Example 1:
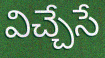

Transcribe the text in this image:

విచ్చేసే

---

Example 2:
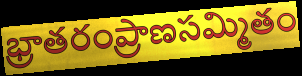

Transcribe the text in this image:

భ్రాతరంప్రాణసమ్మితం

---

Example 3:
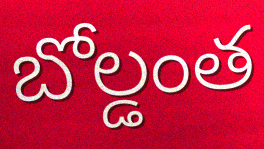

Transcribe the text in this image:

బోల్డంత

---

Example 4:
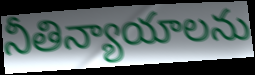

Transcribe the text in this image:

నీతిన్యాయాలను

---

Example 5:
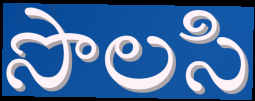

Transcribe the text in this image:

సొలసి